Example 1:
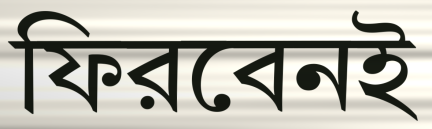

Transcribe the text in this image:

ফিরবেনই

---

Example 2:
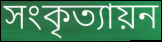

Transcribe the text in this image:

সংকৃত্যায়ন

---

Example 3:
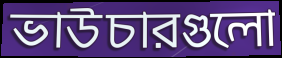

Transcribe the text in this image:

ভাউচারগুলো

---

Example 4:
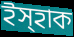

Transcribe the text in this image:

ইস্‌হাক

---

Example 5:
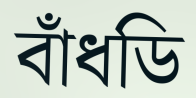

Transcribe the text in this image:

বাঁধডি